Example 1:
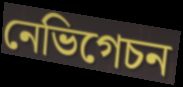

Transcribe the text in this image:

নেভিগেচন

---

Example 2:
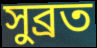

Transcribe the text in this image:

সুব্ৰত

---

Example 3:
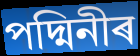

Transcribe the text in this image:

পদ্মিনীৰ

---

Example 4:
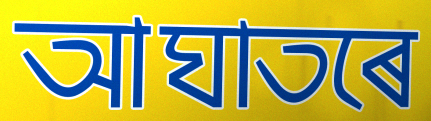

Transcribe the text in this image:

আঘাতৰে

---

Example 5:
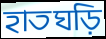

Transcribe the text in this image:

হাতঘড়ি